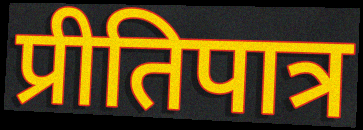
प्रीतिपात्र